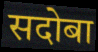
सदोबा